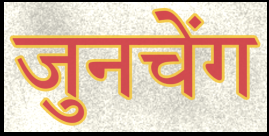
जुनचेंग